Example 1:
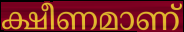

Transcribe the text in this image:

ക്ഷീണമാണ്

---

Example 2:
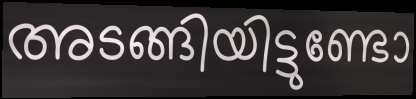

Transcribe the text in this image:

അടങ്ങിയിട്ടുണ്ടോ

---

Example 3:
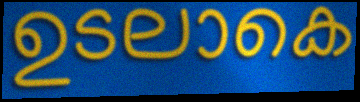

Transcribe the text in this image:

ഉടലാകെ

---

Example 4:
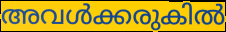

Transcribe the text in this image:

അവൾക്കരുകിൽ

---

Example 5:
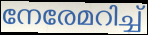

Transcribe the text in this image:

നേരേമറിച്ച്